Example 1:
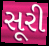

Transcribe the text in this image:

સૂરી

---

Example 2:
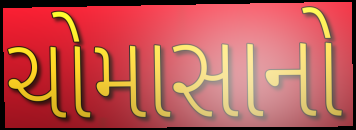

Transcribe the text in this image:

ચોમાસાનો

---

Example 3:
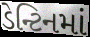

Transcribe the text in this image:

ડેન્ટિનમાં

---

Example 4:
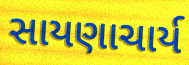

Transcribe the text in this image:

સાયણાચાર્ય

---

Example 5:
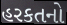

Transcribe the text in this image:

હરકતનો